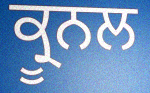
ਕ੍ਰੂਨਲ